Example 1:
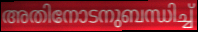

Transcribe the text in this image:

അതിനോടനുബന്ധിച്ച്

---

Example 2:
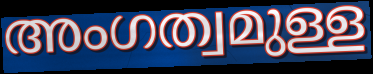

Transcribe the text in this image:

അംഗത്വമുള്ള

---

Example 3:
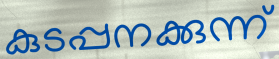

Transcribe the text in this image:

കുടപ്പനക്കുന്ന്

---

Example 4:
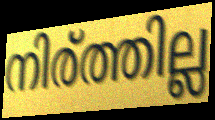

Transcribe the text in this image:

നിര്ത്തില്ല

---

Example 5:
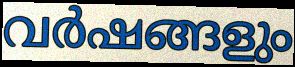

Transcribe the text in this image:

വർഷങ്ങളും